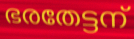
ഭരതേട്ടന്